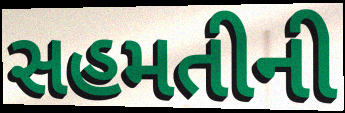
સહમતીની